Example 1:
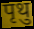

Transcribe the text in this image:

पृथु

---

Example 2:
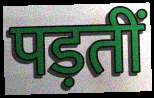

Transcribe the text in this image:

पड़तीं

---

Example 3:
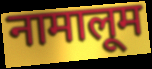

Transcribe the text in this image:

नामालूम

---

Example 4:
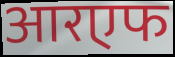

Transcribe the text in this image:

आरएफ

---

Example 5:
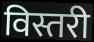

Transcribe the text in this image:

विस्तरी